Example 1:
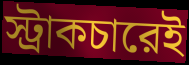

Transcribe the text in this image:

স্ট্রাকচারেই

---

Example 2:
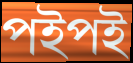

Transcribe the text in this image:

পইপই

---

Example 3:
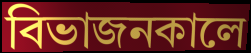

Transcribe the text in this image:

বিভাজনকালে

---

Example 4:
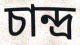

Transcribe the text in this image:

চান্দ্র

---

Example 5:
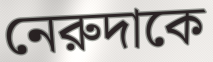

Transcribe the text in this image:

নেরুদাকে